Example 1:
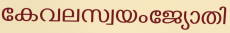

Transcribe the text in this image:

കേവലസ്വയംജ്യോതി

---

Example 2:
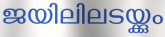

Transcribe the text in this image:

ജയിലിലടയ്ക്കും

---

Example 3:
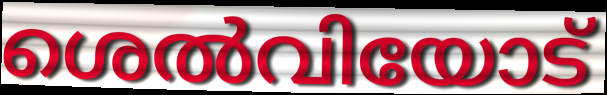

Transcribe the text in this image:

ശെൽവിയോട്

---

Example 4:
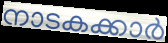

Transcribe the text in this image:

നാടകക്കാർ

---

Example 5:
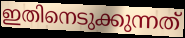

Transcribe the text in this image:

ഇതിനെടുക്കുന്നത്